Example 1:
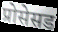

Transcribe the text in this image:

प्रोसेसड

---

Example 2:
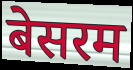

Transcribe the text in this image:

बेसरम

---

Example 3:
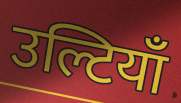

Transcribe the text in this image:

उल्टियाँ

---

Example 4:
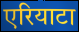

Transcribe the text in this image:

एरियाटा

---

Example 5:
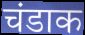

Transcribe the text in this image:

चंडाक